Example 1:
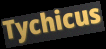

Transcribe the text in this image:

Tychicus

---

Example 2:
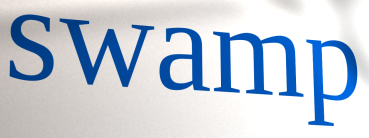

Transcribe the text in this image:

swamp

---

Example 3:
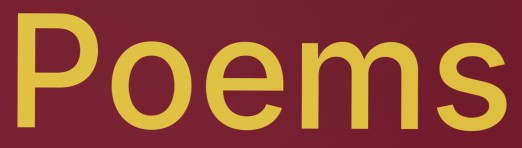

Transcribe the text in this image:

Poems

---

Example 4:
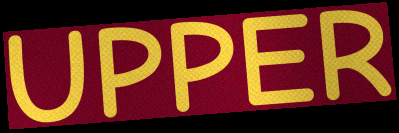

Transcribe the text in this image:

UPPER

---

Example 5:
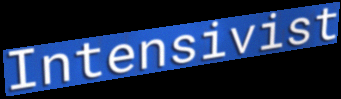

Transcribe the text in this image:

Intensivist